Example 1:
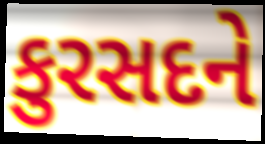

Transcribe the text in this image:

કુરસદને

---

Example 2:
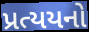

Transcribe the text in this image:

પ્રત્યયનો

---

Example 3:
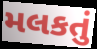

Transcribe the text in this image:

મલકતું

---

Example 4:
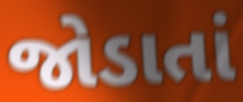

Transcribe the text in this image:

જોડાતાં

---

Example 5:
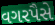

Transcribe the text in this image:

વગરપૈસે